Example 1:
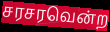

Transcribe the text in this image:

சரசரவென்ற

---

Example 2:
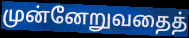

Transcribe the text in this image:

முன்னேறுவதைத்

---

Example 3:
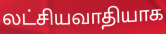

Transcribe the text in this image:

லட்சியவாதியாக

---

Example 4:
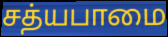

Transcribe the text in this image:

சத்யபாமை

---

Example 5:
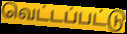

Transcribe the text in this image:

வெட்டப்பட்டு